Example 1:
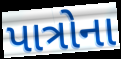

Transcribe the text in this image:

પાત્રોના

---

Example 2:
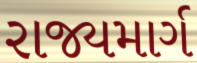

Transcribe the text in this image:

રાજ્યમાર્ગ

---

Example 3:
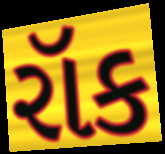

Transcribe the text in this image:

રૉક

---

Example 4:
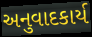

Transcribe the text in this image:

અનુવાદકાર્ય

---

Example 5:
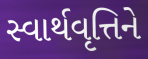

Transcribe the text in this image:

સ્વાર્થવૃત્તિને